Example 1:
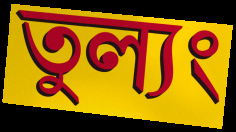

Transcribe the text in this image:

তুল্যং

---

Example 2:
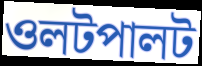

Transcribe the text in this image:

ওলটপালট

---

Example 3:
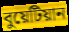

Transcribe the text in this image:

বুয়েটিয়ান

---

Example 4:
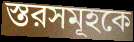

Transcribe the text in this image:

স্তরসমূহকে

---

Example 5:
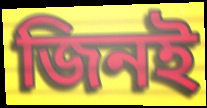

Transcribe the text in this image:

জিনই